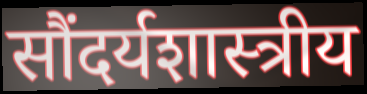
सौंदर्यशास्त्रीय